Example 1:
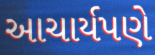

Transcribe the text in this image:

આચાર્યપણે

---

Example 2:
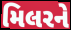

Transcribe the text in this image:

મિલરને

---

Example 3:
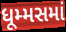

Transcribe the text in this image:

ધૂમ્મસમાં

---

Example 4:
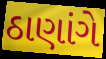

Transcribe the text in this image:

ઠાણાંગે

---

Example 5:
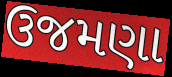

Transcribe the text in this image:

ઉજમણા